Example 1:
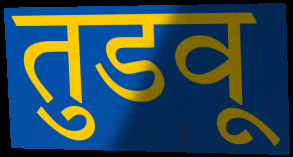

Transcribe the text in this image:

तुडवू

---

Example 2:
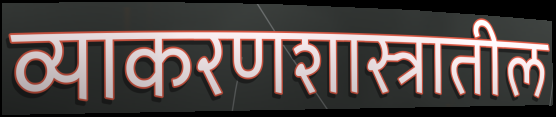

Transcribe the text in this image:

व्याकरणशास्त्रातील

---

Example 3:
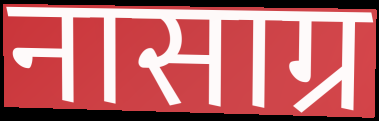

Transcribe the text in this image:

नासाग्र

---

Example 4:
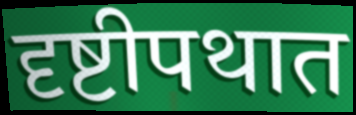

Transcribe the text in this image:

दृष्टीपथात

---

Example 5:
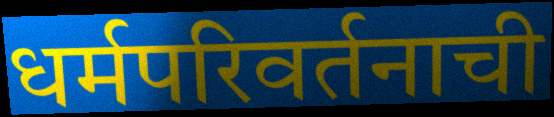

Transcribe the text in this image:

धर्मपरिवर्तनाची